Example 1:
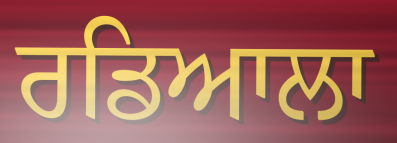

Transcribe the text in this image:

ਰਡਿਆਲਾ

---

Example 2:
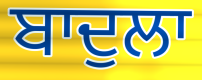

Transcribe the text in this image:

ਬਾਦੁਲਾ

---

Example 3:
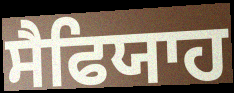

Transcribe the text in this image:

ਸੈਫਿਯਾਹ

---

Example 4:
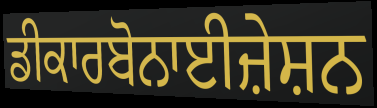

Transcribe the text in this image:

ਡੀਕਾਰਬੋਨਾਈਜ਼ੇਸ਼ਨ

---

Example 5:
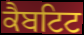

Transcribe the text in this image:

ਕੈਬਟਿਟ